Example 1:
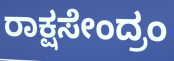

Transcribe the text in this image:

ರಾಕ್ಷಸೇಂದ್ರಂ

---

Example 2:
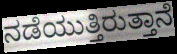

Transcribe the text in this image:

ನಡೆಯುತ್ತಿರುತ್ತಾನೆ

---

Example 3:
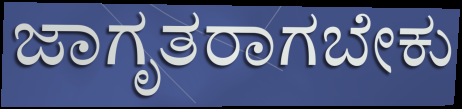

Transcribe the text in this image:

ಜಾಗೃತರಾಗಬೇಕು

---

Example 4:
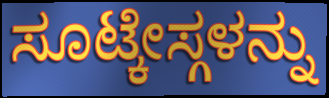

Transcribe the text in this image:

ಸೂಟ್ಕೇಸ್ಗಳನ್ನು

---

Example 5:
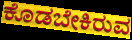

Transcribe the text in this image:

ಕೊಡಬೇಕಿರುವ